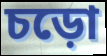
চড়ো